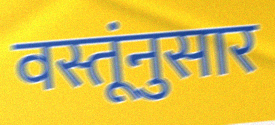
वस्तूंनुसार